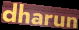
dharun